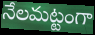
నేలమట్టంగా